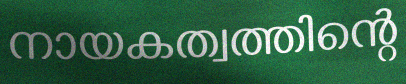
നായകത്വത്തിന്റെ